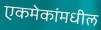
एकमेकांमधील